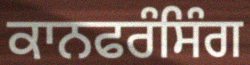
ਕਾਨਫਰੰਸਿੰਗ